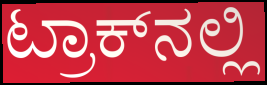
ಟ್ರಾಕ್‌ನಲ್ಲಿ